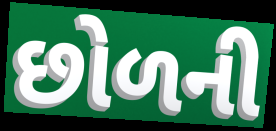
છોળની